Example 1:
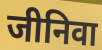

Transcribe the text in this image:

जीनिवा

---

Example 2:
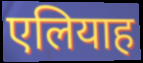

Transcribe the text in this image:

एलियाह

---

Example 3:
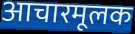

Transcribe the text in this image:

आचारमूलक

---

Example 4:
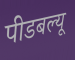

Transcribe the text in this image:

पीडबल्यू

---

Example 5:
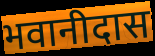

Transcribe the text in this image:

भवानीदास